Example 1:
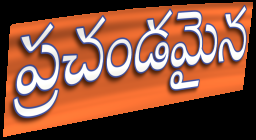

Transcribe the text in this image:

ప్రచండమైన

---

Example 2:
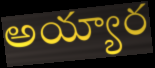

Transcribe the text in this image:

అయ్యార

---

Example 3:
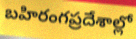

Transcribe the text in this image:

బహిరంగప్రదేశాల్లో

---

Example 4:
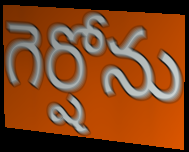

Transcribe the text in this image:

గెర్షోను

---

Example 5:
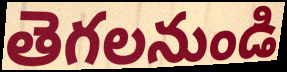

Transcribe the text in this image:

తెగలనుండి